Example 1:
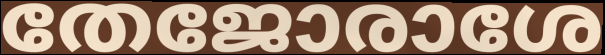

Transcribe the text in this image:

തേജോരാശേ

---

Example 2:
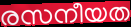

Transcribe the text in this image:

രസനീയത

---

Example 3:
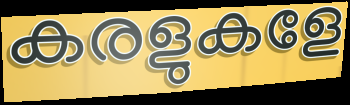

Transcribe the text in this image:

കരളുകളേ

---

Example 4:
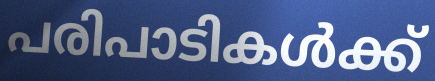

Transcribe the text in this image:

പരിപാടികൾക്ക്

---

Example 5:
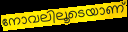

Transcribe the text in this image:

നോവലിലൂടെയാണ്